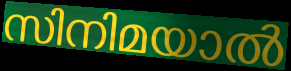
സിനിമയാൽ